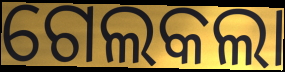
ଗେଲକଲା